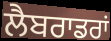
ਲੈਬਰਾਡਰਾਂ